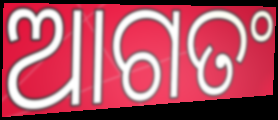
ଆଗତଂ